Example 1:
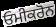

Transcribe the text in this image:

ਓਮੀਕਰੋਨ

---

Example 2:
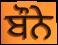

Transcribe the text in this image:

ਬੌਨੇ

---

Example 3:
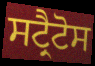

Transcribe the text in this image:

ਸਟ੍ਰੈਟੋਸ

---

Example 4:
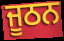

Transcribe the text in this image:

ਜੂਠਨ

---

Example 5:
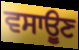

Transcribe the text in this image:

ਵਸਾਊਣ